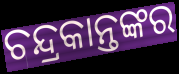
ଚନ୍ଦ୍ରକାନ୍ତଙ୍କର